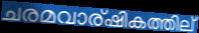
ചരമവാര്ഷികത്തില്